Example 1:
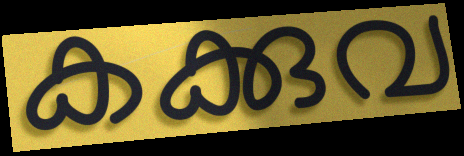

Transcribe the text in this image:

കക്കുവ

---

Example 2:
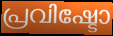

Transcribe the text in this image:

പ്രവിഷ്ടോ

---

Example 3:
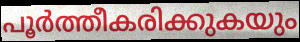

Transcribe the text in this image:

പൂർത്തീകരിക്കുകയും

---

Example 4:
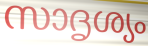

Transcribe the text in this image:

സാദൃശ്യം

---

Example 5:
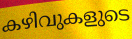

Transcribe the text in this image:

കഴിവുകളുടെ